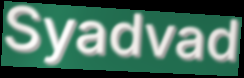
Syadvad